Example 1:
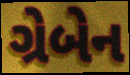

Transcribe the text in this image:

ગ્રેબેન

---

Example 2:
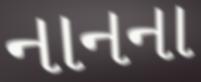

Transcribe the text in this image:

નાનના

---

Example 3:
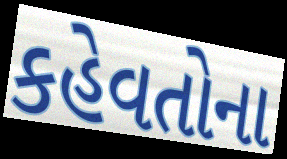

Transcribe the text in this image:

કહેવતોના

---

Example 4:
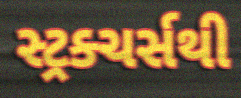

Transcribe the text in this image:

સ્ટ્રક્ચર્સથી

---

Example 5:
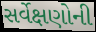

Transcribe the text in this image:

સર્વેક્ષણોની